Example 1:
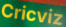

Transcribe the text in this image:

Cricviz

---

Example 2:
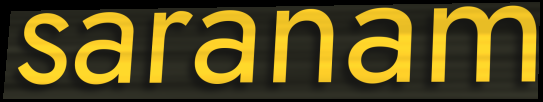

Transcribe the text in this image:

saranam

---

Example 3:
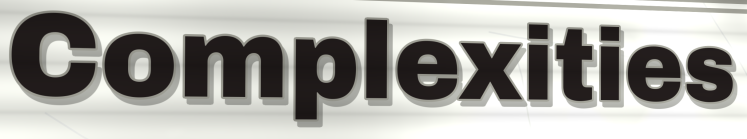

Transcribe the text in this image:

Complexities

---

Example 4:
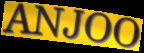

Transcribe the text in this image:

ANJOO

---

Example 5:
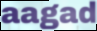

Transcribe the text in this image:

aagad